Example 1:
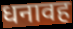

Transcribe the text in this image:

धनावह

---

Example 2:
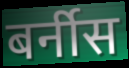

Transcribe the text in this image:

बर्नीस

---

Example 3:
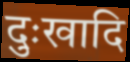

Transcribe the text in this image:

दुःखादि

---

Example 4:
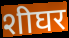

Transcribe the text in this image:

शीघर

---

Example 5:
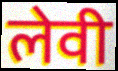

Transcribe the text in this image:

लेवी